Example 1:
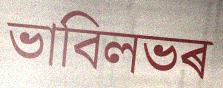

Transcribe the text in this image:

ভাবিলভৰ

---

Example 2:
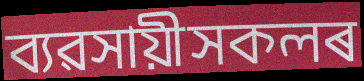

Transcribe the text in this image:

ব্যৱসায়ীসকলৰ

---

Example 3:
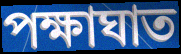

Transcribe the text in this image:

পক্ষাঘাত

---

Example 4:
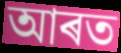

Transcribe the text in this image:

আৰত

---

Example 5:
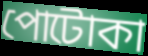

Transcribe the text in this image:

পোটোকা